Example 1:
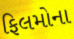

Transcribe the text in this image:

ફિલમોના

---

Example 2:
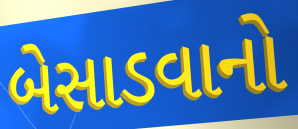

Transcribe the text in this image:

બેસાડવાનો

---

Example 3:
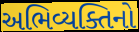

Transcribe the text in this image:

અભિવ્યક્તિનો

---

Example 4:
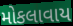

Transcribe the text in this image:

મોકલાવાય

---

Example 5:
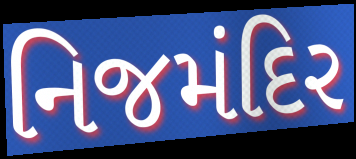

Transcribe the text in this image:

નિજમંદિર